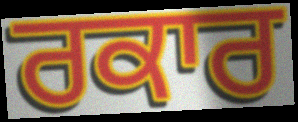
ਰਕਾਰ